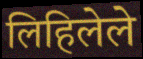
लिहिलेले